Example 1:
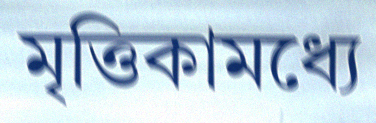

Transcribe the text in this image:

মৃত্তিকামধ্যে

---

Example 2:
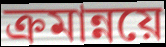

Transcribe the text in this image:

ক্রমান্নয়ে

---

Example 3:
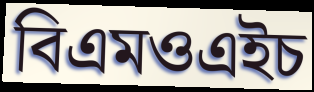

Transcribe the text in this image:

বিএমওএইচ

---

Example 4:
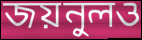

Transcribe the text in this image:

জয়নুলও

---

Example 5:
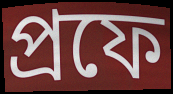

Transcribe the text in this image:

প্রফে